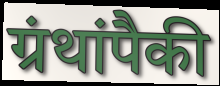
ग्रंथांपैकी